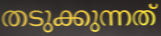
തടുക്കുന്നത്